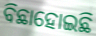
ବିଛାହୋଇଛି